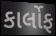
કાર્લોફ